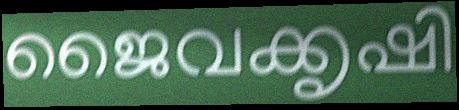
ജൈവക്കൃഷി